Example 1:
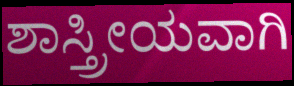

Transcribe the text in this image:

ಶಾಸ್ತ್ರೀಯವಾಗಿ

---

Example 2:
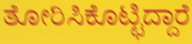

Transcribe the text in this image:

ತೋರಿಸಿಕೊಟ್ಟಿದ್ದಾರೆ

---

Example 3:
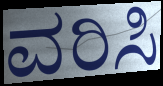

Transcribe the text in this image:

ವರಿಸಿ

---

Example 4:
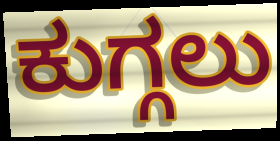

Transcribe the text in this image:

ಕುಗ್ಗಲು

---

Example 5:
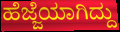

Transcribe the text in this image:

ಹೆಜ್ಜೆಯಾಗಿದ್ದು